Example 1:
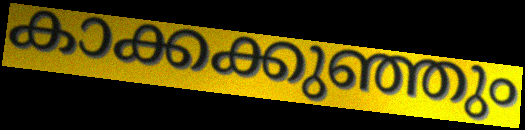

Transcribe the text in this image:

കാക്കക്കുഞ്ഞും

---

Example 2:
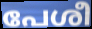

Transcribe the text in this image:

പേശീ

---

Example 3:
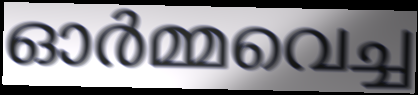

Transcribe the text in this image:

ഓർമ്മവെച്ച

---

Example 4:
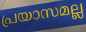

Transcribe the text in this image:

പ്രയാസമല്ല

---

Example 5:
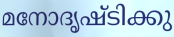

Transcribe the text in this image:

മനോദൃഷ്ടിക്കു